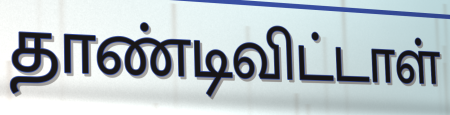
தாண்டிவிட்டாள்